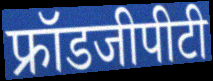
फ्रॉडजीपीटी